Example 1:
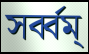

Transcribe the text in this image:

সৰ্ব্বম্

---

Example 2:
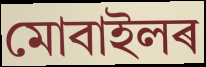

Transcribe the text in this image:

মোবাইলৰ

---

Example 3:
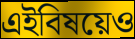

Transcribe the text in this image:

এইবিষয়েও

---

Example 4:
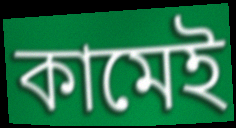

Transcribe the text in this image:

কামেই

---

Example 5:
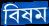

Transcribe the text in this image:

বিষম